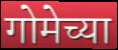
गोमेच्या